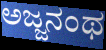
ಅಜ್ಜನಂಥ